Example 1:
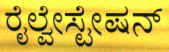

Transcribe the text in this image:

ರೈಲ್ವೇಸ್ಟೇಷನ್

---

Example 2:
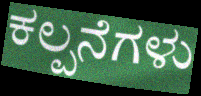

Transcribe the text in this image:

ಕಲ್ಪನೆಗಳು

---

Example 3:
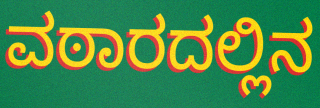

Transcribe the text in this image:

ವಠಾರದಲ್ಲಿನ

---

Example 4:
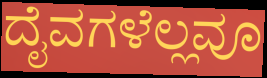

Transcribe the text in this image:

ದೈವಗಳೆಲ್ಲವೂ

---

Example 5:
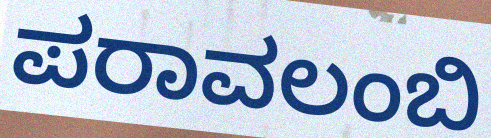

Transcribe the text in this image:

ಪರಾವಲಂಬಿ